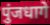
पुंजधागे